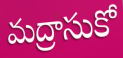
మద్రాసుకో